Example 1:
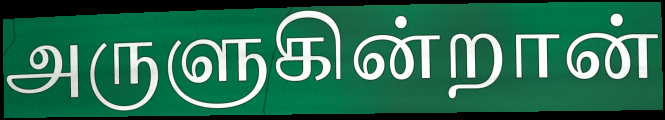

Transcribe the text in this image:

அருளுகின்றான்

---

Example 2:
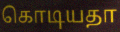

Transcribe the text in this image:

கொடியதா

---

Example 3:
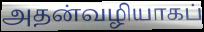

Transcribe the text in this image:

அதன்வழியாகப்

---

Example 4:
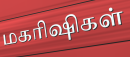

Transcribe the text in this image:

மகரிஷிகள்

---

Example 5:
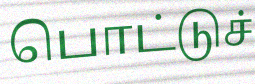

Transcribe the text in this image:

பொட்டுச்